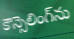
కౌన్సెలింగ్‌ను